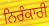
ਨਿਰੰਕਾਰੀ